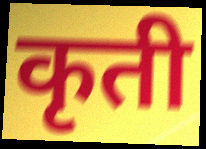
कृती